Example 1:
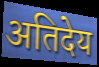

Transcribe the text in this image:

अतिदेय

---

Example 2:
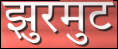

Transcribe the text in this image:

झुरमुट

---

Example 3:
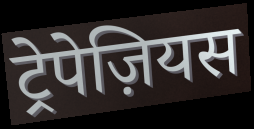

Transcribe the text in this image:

ट्रेपेज़ियस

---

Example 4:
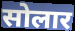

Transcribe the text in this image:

सोलार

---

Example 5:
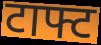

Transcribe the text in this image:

टाफ्ट